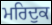
ਮਰਿਦੁਕ